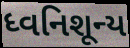
ધ્વનિશૂન્ય